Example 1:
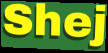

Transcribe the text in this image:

Shej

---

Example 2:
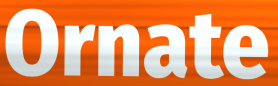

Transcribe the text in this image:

Ornate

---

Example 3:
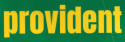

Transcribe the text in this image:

provident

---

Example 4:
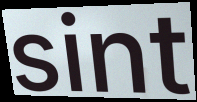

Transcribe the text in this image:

sint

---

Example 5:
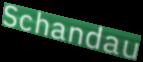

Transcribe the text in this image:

Schandau